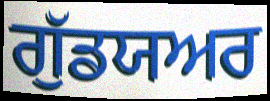
ਗੁੱਡਯਅਰ